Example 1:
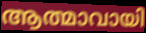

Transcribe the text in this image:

ആത്മാവായി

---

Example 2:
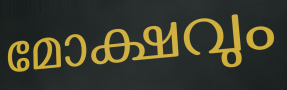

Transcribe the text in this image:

മോക്ഷവും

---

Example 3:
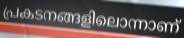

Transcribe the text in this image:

പ്രകടനങ്ങളിലൊന്നാണ്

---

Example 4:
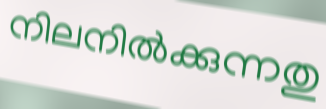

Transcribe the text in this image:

നിലനിൽക്കുന്നതു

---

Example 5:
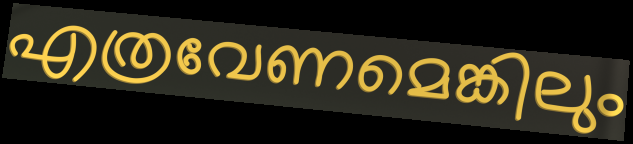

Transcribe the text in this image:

എത്രവേണമെങ്കിലും